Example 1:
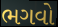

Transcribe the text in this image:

ભગવો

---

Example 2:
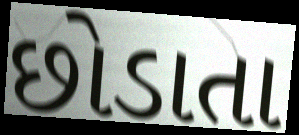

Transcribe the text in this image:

છોડાતા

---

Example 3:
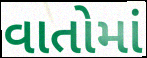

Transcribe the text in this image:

વાતોમાં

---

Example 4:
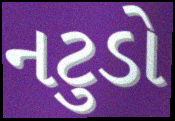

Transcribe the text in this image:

નટુડો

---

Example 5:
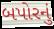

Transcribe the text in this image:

બપોરનું